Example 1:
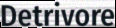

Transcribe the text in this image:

Detrivore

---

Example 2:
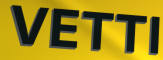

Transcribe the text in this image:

VETTI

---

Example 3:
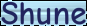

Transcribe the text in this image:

Shune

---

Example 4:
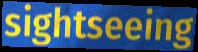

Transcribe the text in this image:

sightseeing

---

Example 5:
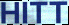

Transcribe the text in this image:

HITT